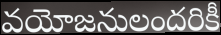
వయోజనులందరికీ